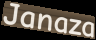
Janaza